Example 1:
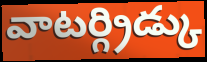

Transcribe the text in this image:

వాటర్గ్రిడ్కు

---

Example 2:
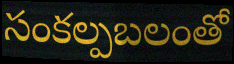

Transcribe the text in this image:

సంకల్పబలంతో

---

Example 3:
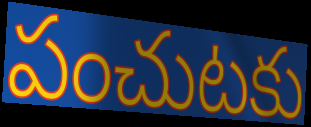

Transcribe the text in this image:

పంచుటకు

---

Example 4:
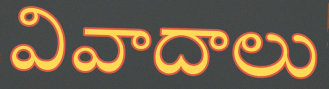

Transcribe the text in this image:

వివాదాలు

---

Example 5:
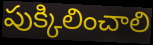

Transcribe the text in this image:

పుక్కిలించాలి